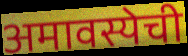
अमावस्येची